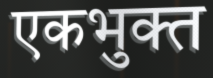
एकभुक्त